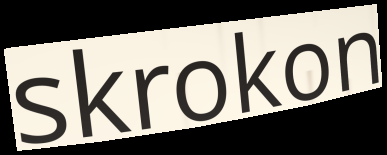
skrokon